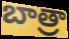
బాత్రా